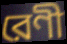
রেণী